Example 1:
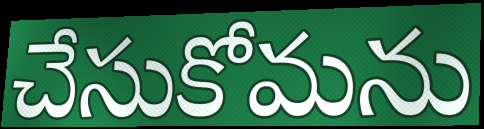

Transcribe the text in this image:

చేసుకోమను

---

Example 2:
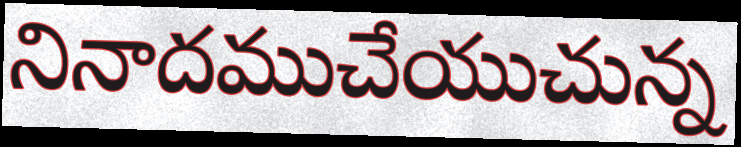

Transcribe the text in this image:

నినాదముచేయుచున్న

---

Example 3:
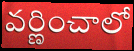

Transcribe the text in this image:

వర్ణించాలో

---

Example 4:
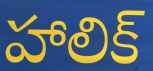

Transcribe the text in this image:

హాలిక్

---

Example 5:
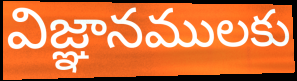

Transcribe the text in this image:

విజ్ఞానములకు